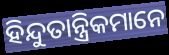
ହିନ୍ଦୁତାନ୍ତ୍ରିକମାନେ